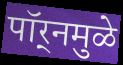
पॉर्नमुळे